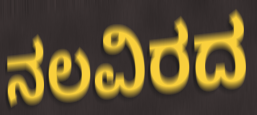
ನಲವಿರದ